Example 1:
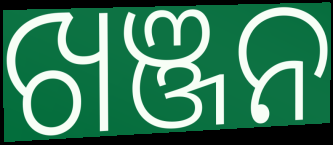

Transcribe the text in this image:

ଖଞ୍ଜନ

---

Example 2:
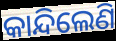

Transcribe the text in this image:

କାନ୍ଦିଲେଣି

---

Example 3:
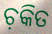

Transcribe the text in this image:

ଚ଼କିତ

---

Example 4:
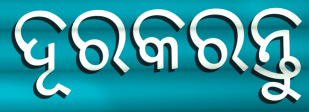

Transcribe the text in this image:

ଦୂରକରନ୍ତୁ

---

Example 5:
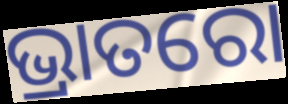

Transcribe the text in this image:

ଭ୍ରାତରୋ